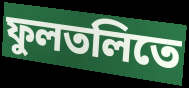
ফুলতলিতে